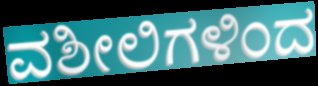
ವಶೀಲಿಗಳಿಂದ